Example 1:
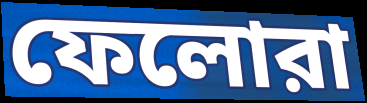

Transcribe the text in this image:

ফেলোরা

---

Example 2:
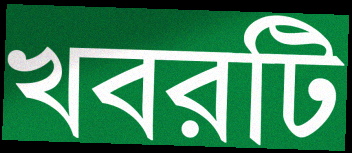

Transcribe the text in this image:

খবরটি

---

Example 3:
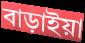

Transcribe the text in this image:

বাড়াইয়া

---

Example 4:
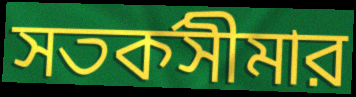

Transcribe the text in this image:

সতর্কসীমার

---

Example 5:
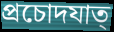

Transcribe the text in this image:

প্রচোদযাত্